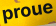
proue